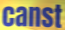
canst